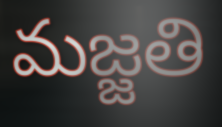
మజ్జతి